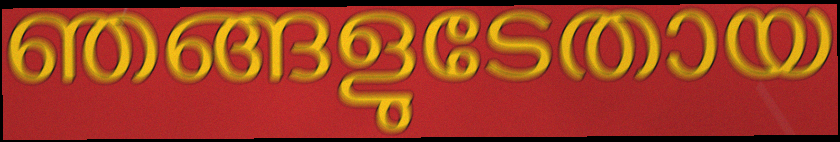
ഞങ്ങളുടേതായ